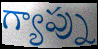
గ్యాప్ను